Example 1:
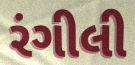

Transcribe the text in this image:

રંગીલી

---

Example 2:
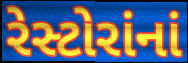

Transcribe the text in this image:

રેસ્ટોરાંનાં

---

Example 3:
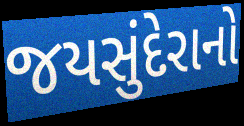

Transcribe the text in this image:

જયસુંદેરાનો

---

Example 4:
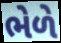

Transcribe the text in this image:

ભેળે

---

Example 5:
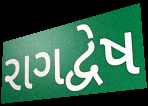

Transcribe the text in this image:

રાગદ્વેષ